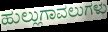
ಹುಲ್ಲುಗಾವಲುಗಳು